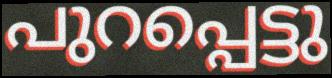
പുറപ്പെട്ടു